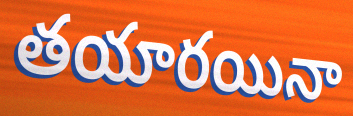
తయారయినా